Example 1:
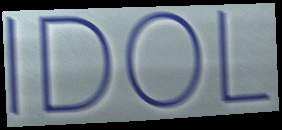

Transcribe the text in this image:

IDOL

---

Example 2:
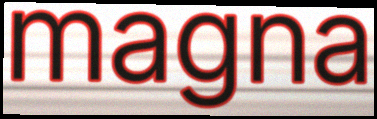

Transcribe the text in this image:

magna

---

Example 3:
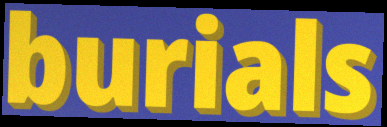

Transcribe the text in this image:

burials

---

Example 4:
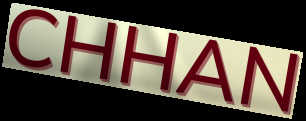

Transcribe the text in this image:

CHHAN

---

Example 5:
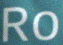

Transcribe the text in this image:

Ro